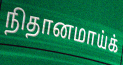
நிதானமாய்க்